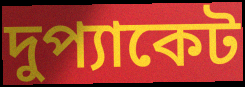
দুপ্যাকেট